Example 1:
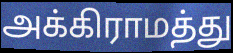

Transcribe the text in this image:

அக்கிராமத்து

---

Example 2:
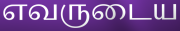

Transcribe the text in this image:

எவருடைய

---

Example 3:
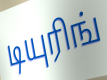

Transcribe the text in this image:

டியுரிங்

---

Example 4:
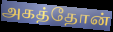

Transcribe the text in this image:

அகத்தோன்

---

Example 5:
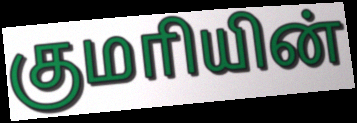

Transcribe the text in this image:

குமரியின்